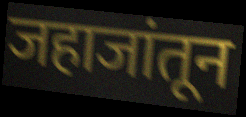
जहाजांतून